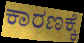
ಕಾರಣಕ್ಕೆ